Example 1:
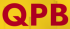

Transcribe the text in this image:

QPB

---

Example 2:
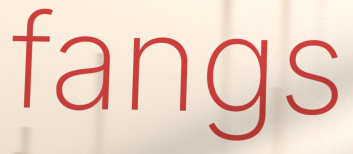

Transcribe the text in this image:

fangs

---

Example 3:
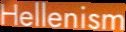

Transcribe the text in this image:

Hellenism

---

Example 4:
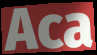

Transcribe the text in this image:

Aca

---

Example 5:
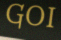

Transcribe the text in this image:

GOI